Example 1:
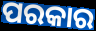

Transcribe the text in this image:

ପରକାର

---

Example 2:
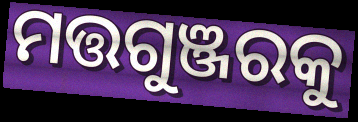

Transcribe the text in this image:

ମତ୍ତଗୁଞ୍ଜରକୁ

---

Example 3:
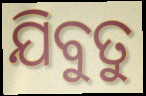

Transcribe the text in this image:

ଯିବୁତୁ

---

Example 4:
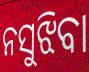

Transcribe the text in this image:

ନସୁଝିବା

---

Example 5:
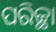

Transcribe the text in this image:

ପରିଚ୍ଛା